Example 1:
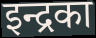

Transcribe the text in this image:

इन्द्रका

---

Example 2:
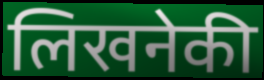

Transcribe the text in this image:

लिखनेकी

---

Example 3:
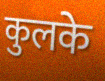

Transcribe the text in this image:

कुलके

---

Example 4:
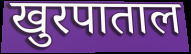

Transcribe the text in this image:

खुरपाताल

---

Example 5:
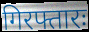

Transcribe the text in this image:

गिरफ्तारः